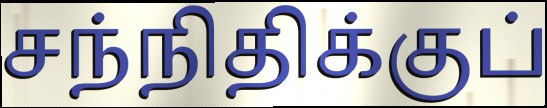
சந்நிதிக்குப்